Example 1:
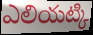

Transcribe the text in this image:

ఎలియట్కి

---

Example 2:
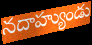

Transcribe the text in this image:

నదాహ్యుండు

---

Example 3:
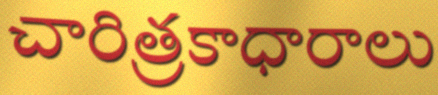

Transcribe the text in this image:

చారిత్రకాధారాలు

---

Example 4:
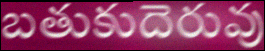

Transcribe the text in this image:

బతుకుదెరువు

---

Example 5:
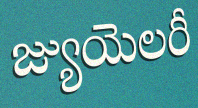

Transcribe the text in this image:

జ్యుయెలరీ